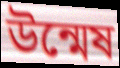
উন্মেষ